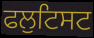
ਫਲੁਟਿਸਟ